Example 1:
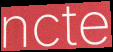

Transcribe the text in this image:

ncte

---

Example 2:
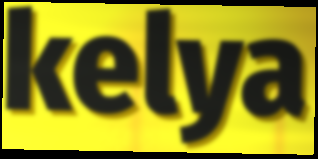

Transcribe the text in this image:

kelya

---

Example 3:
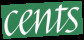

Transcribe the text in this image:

cents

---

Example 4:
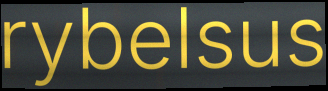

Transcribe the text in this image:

rybelsus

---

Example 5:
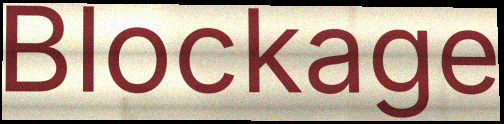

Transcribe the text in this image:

Blockage